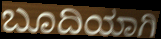
ಬೂದಿಯಾಗಿ